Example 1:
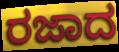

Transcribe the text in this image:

ರಜಾದ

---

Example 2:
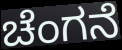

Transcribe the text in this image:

ಚೆಂಗನೆ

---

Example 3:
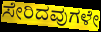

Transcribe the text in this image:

ಸೇರಿದವುಗಳೇ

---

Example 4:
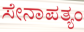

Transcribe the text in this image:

ಸೇನಾಪತ್ಯಂ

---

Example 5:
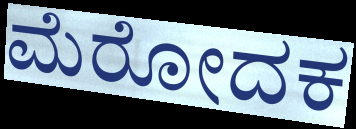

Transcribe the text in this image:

ಮೆರೋದಕ